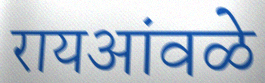
रायआंवळे